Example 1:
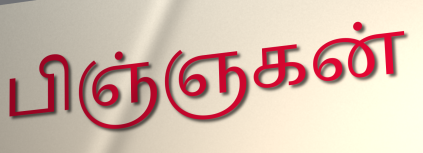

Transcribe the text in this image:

பிஞ்ஞகன்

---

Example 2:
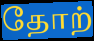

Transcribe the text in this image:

தோற்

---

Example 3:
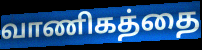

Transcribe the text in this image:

வாணிகத்தை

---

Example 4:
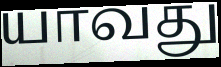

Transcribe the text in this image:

யாவது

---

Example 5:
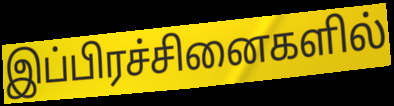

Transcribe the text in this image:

இப்பிரச்சினைகளில்